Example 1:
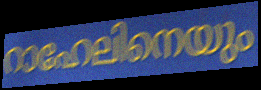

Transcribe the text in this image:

റാഹേലിനെയും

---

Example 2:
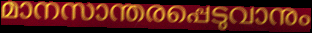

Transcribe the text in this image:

മാനസാന്തരപ്പെടുവാനും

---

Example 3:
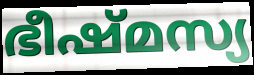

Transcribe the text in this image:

ഭീഷ്മസ്യ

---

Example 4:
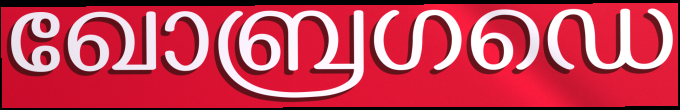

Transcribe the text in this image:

ഖോബ്രഗഡെ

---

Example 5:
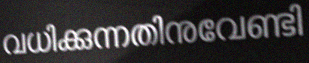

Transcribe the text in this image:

വധിക്കുന്നതിനുവേണ്ടി